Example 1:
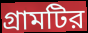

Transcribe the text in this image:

গ্রামটির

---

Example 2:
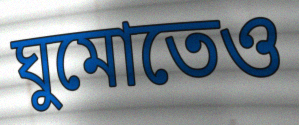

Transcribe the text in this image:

ঘুমোতেও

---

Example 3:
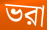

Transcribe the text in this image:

ভরা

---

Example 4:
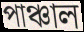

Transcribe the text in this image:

পাঞ্চাল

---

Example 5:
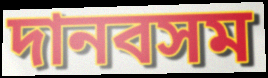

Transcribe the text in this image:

দানবসম